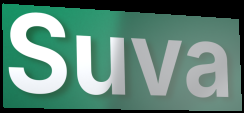
Suva